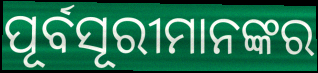
ପୂର୍ବସୂରୀମାନଙ୍କର